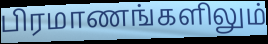
பிரமாணங்களிலும்